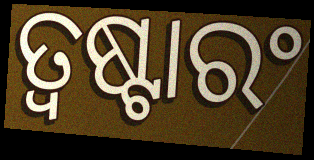
ତ୍ୱଷ୍ଟାରଂ